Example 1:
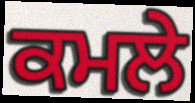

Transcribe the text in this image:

ਕਮਲੇ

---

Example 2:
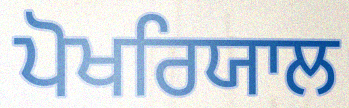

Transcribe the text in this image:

ਪੋਖਰਿਯਾਲ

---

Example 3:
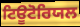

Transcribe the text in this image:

ਟਿਊਟੋਰਿਯਲ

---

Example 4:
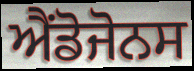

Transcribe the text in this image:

ਐਂਡੋਜੋਨਸ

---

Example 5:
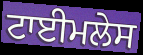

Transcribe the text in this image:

ਟਾਈਮਲੇਸ